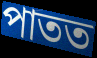
পাতত